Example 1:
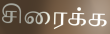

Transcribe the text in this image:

சிரைக்க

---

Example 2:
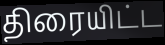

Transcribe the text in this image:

திரையிட்ட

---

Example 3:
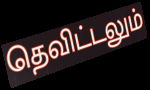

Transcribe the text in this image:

தெவிட்டலும்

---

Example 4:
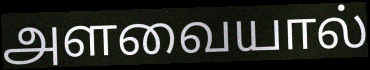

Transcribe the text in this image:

அளவையால்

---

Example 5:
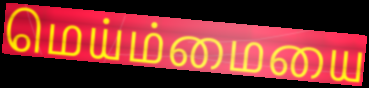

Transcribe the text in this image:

மெய்ம்மையை